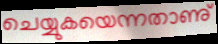
ചെയ്യുകയെന്നതാണു്